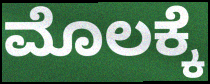
ಮೊಲಕ್ಕೆ